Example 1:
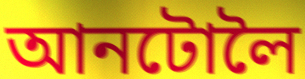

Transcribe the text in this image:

আনটোলৈ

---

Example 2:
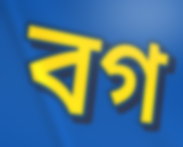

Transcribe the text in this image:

বগ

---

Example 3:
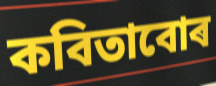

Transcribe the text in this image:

কবিতাবোৰ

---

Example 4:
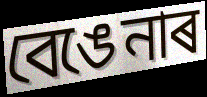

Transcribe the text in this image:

বেঙেনাৰ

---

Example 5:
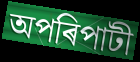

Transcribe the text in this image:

অপৰিপাটী